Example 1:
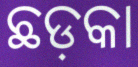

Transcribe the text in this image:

ଛଡ଼କା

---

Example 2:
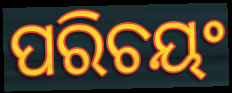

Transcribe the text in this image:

ପରିଚୟଂ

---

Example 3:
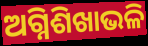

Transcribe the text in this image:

ଅଗ୍ନିଶିଖାଭଳି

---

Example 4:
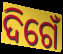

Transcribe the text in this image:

ଦିଗେଁ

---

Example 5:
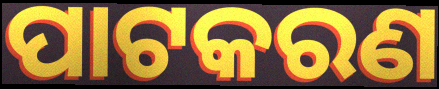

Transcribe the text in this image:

ପାଟକରଣ